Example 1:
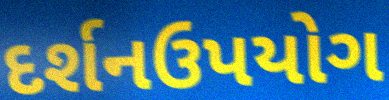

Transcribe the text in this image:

દર્શનઉપયોગ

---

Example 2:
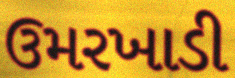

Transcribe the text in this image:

ઉમરખાડી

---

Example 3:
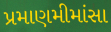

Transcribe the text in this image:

પ્રમાણમીમાંસા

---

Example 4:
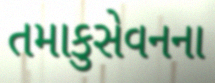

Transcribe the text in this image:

તમાકુસેવનના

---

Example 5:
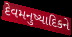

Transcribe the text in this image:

દેવમનુષ્યાદિકને